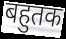
बहुतक